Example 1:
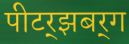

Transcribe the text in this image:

पीटर्झबर्ग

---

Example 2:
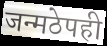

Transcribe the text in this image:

जन्मठेपही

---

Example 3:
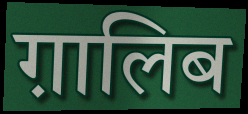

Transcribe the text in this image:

ग़ालिब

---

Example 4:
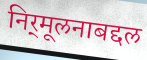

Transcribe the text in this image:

निर्मूलनाबद्दल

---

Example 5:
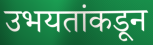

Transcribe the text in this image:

उभयतांकडून